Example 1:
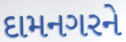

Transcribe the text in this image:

દામનગરને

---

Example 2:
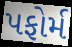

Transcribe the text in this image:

પફોર્મ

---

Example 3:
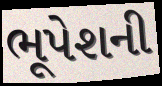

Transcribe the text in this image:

ભૂપેશની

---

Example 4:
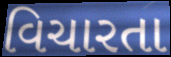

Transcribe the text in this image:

વિચારતા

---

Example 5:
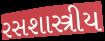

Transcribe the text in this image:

રસશાસ્ત્રીય